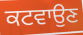
ਕਟਵਾਉਣ